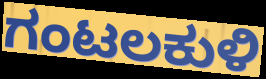
ಗಂಟಲಕುಳಿ